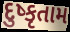
દુષ્કૃતામ